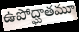
ఉపోద్ఘాతమూ